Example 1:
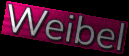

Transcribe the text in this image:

Weibel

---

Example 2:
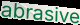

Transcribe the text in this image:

abrasive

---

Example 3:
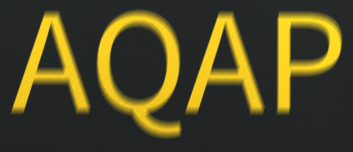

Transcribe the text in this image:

AQAP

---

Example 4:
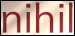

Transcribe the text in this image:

nihil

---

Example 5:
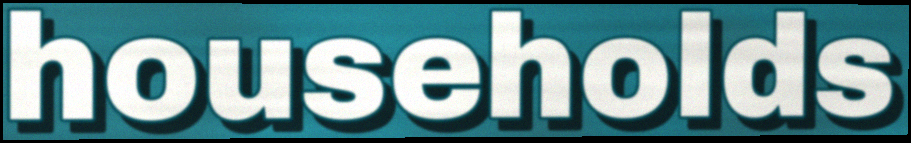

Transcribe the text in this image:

households